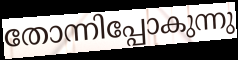
തോന്നിപ്പോകുന്നു